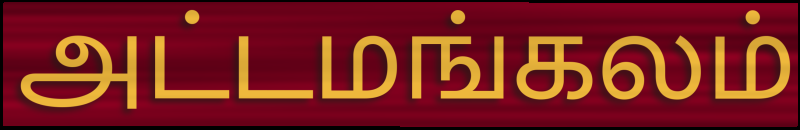
அட்டமங்கலம்